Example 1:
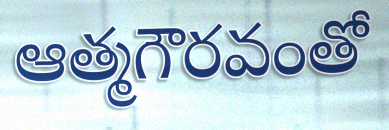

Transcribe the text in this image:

ఆత్మగౌరవంతో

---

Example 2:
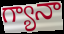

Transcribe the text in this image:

గ్యానా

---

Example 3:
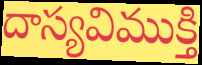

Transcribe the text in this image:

దాస్యవిముక్తి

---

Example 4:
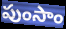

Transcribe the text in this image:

పుంసాం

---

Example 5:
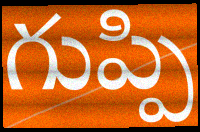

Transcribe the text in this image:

గుప్పి